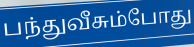
பந்துவீசும்போது